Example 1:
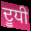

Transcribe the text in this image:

ਦੂਧੀ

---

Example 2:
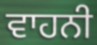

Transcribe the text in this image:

ਵਾਹਨੀ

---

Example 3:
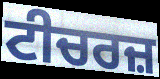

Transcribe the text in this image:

ਟੀਚਰਜ਼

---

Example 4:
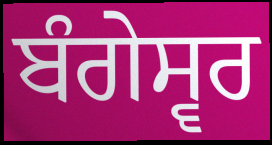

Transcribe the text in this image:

ਬੰਗੇਸ੍ਵਰ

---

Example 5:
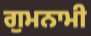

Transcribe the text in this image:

ਗੁਮਨਾਮੀ